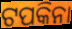
ଟପକିନା